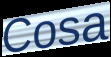
Cosa